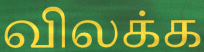
விலக்க